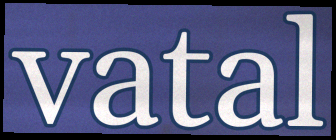
vatal